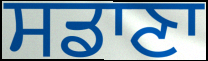
ਸਡਾਣਾ